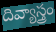
దివ్యాస్త్రం